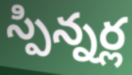
స్పిన్నర్ల